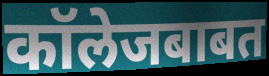
कॉलेजबाबत